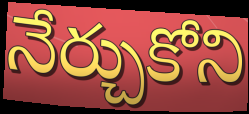
నేర్చుకోని